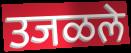
उजळले